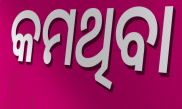
କମଥିବା